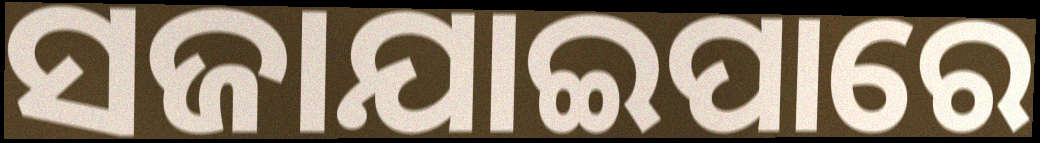
ସଜାଯାଇପାରେ